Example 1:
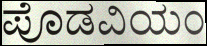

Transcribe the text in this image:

ಪೊಡವಿಯಂ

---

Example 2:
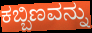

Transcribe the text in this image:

ಕಬ್ಬಿಣವನ್ನು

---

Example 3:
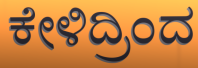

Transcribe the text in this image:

ಕೇಳಿದ್ರಿಂದ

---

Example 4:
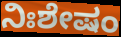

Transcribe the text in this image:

ನಿಃಶೇಷಂ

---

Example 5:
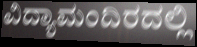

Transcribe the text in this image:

ವಿದ್ಯಾಮಂದಿರದಲ್ಲಿ